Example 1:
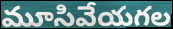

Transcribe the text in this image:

మూసివేయగల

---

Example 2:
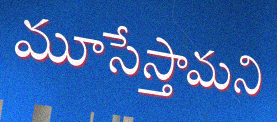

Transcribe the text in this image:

మూసేస్తామని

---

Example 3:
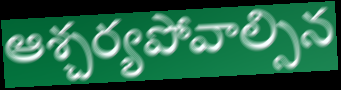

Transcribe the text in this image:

ఆశ్చర్యపోవాల్సిన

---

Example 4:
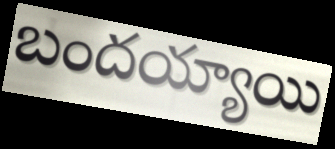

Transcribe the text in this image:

బందయ్యాయి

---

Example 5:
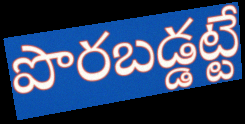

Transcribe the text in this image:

పొరబడ్డట్టే